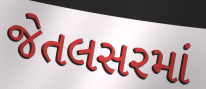
જેતલસરમાં